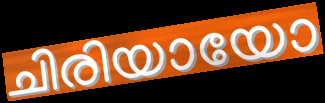
ചിരിയായോ